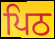
ਪਿਠ